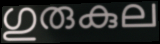
ഗുരുകുല